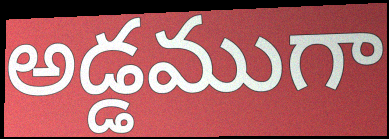
అడ్డముగా